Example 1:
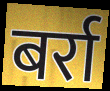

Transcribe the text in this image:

बर्रा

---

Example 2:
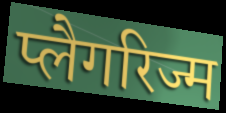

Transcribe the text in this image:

प्लैगरिज्म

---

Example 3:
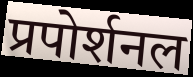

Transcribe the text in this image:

प्रपोर्शनल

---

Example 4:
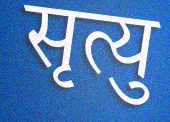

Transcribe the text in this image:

सृत्यु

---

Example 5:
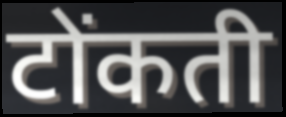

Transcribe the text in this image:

टोंकती